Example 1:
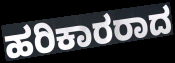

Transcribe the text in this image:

ಹರಿಕಾರರಾದ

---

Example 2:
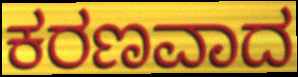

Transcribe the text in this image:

ಕರಣವಾದ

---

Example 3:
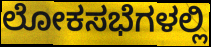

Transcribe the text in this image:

ಲೋಕಸಭೆಗಳಲ್ಲಿ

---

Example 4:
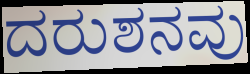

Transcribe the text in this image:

ದರುಶನವು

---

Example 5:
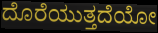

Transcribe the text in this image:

ದೊರೆಯುತ್ತದೆಯೋ